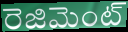
రెజిమెంట్